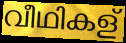
വീഥികള്